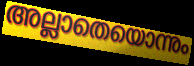
അല്ലാതെയൊന്നും